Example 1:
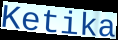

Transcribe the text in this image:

Ketika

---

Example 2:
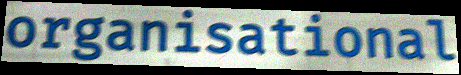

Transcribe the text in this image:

organisational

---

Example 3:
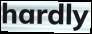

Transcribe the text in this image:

hardly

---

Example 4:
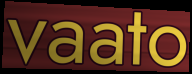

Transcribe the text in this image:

vaato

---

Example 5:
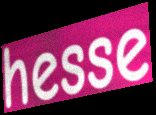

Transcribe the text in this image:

hesse